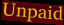
Unpaid